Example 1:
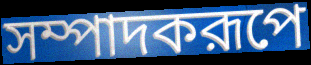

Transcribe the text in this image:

সম্পাদকরূপে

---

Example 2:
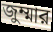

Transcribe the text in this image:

জুম্মার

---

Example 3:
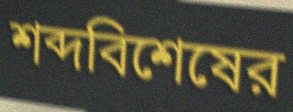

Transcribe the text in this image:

শব্দবিশেষের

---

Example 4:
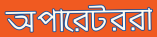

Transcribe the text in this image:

অপারেটররা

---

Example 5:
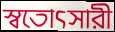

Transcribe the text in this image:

স্বতোৎসারী